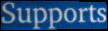
Supports